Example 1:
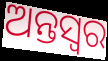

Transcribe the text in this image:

ଅନ୍ତସ୍ୱର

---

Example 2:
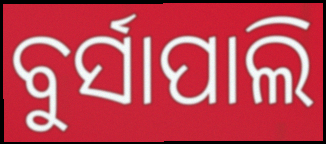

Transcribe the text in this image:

ବୁର୍ସାପାଲି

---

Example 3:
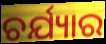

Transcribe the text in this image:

ଚର୍ଯ୍ୟାର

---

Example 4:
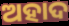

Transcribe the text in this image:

ଅହାଦ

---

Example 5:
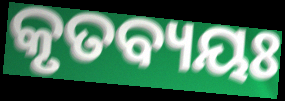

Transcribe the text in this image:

କୃତବ୍ୟୟଃ